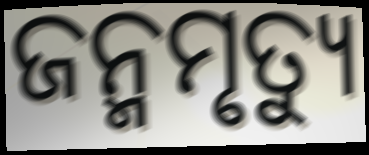
ଜନ୍ମମୃତ୍ୟୁ